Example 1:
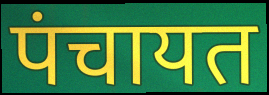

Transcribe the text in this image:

पंचायत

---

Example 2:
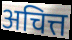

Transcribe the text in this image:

अचित्त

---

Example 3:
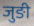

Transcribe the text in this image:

जुङी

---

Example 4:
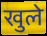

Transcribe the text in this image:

खुले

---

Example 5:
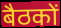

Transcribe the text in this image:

बैठकों